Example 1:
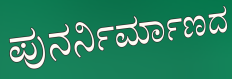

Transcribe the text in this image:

ಪುನರ್ನಿರ್ಮಾಣದ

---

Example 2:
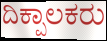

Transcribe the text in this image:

ದಿಕ್ಪಾಲಕರು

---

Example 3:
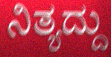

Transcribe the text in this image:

ನಿತ್ಯದ್ದು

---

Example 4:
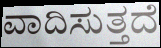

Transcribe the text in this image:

ವಾದಿಸುತ್ತದೆ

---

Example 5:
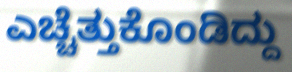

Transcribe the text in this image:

ಎಚ್ಚೆತ್ತುಕೊಂಡಿದ್ದು